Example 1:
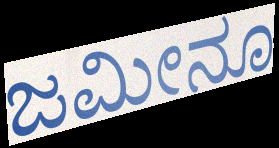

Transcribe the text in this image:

ಜಮೀನೂ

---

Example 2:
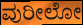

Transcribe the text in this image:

ವುರೀಲೋ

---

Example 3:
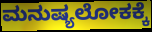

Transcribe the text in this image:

ಮನುಷ್ಯಲೋಕಕ್ಕೆ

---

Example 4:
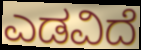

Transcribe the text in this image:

ಎಡವಿದೆ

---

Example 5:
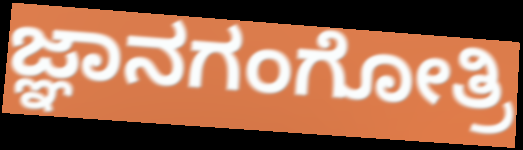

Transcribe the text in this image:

ಜ್ಞಾನಗಂಗೋತ್ರಿ